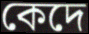
কেদে